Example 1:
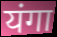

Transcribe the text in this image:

यंगा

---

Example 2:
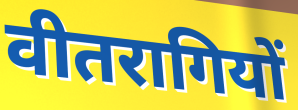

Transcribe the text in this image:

वीतरागियों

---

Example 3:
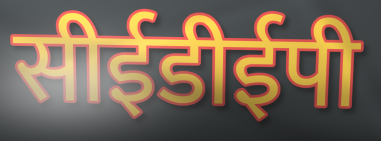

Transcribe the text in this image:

सीईडीईपी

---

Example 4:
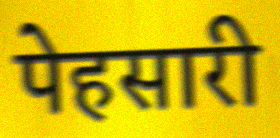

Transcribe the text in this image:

पेहसारी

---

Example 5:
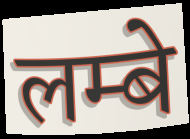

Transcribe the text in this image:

लम्बे